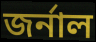
জৰ্নাল